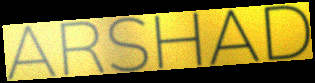
ARSHAD